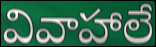
వివాహాలే